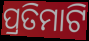
ପ୍ରତିମାଟି